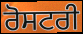
ਰੋਸਟਰੀ